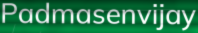
Padmasenvijay